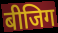
बीजिग